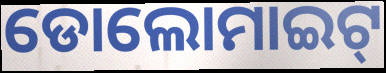
ଡୋଲୋମାଇଟ୍